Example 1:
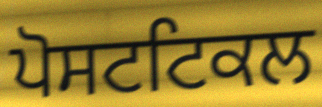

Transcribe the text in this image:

ਪੋਸਟਟਿਕਲ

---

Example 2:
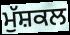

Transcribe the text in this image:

ਮੁੱਸ਼ਕਲ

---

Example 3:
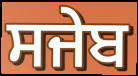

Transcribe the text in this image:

ਸਜੇਬ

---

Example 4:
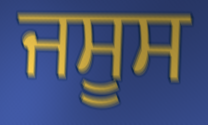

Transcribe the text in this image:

ਜਸੂਸ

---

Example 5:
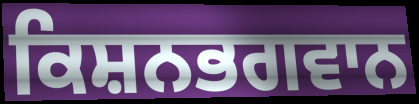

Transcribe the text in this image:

ਕਿਸ਼ਨਭਗਵਾਨ